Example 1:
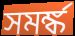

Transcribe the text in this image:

সমর্ঙ্ক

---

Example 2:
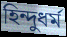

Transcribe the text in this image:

হিন্দুধর্ম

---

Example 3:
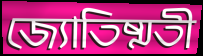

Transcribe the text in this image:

জ্যোতিষ্মতী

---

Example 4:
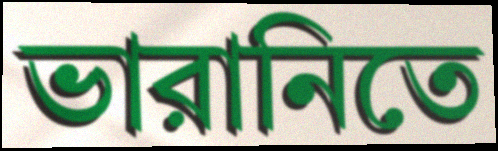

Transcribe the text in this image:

ভারানিতে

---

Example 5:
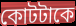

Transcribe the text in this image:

কোটটাকে